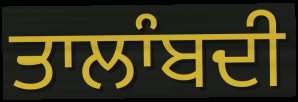
ਤਾਲਾੰਬਦੀ